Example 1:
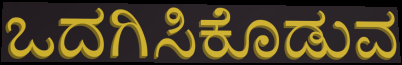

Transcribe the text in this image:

ಒದಗಿಸಿಕೊಡುವ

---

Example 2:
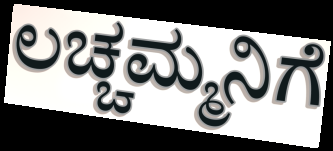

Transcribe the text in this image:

ಲಚ್ಚಮ್ಮನಿಗೆ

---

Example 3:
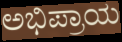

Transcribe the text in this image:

ಅಭಿಪ್ರಾಯ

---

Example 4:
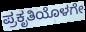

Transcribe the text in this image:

ಪ್ರಕೃತಿಯೊಳಗೇ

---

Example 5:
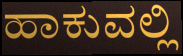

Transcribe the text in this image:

ಹಾಕುವಲ್ಲಿ